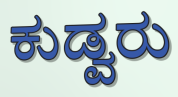
ಕುಡ್ವರು